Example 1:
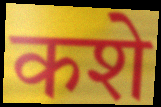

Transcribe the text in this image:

कशे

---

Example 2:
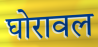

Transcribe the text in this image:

घोरावल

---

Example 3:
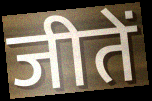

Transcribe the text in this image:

जीतें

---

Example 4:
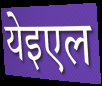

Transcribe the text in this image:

येइएल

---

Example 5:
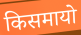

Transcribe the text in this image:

किसमायो